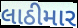
લાઠીમાર